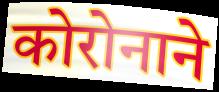
कोरोनाने